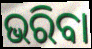
ଭରିବା